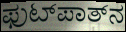
ಫುಟ್‌ಪಾತ್‌ನ